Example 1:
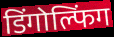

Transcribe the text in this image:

डिंगोल्फिंग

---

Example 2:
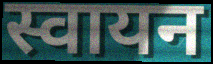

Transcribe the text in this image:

स्वायन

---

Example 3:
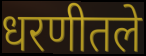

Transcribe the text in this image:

धरणीतले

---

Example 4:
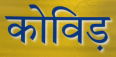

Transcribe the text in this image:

कोविड़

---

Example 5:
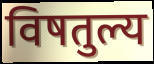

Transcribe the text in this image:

विषतुल्य